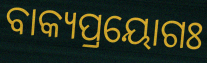
ବାକ୍ୟପ୍ରୟୋଗଃ